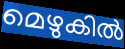
മെഴുകിൽ